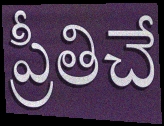
ప్రీతిచే